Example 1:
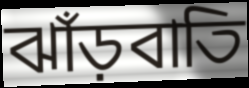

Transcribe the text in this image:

ঝাঁড়বাতি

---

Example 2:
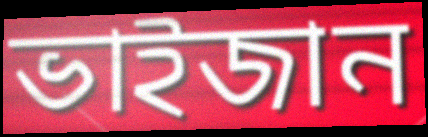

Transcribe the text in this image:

ভাইজান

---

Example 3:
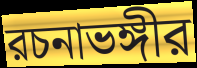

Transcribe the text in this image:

রচনাভঙ্গীর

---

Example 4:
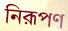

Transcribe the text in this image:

নিরূপণ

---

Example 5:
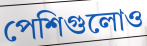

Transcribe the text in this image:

পেশিগুলোও